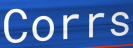
Corrs